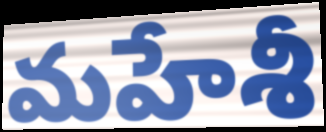
మహేశీ